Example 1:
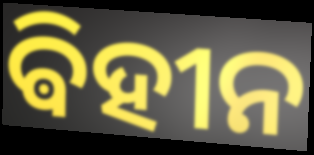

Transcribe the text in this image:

ଵିହୀନ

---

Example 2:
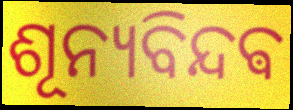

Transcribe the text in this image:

ଶୂନ୍ଯବିନ୍ଦଵ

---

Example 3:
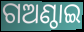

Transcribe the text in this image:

ଗଅଣ୍ଠାଇ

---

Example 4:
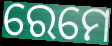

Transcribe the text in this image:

ରେମେ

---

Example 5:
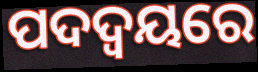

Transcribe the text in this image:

ପଦଦ୍ୱୟରେ